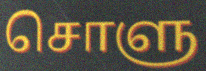
சொளு